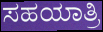
ಸಹಯಾತ್ರಿ